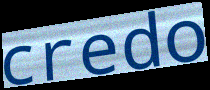
credo